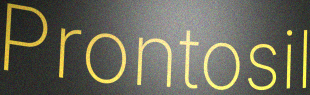
Prontosil